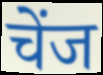
चेंज